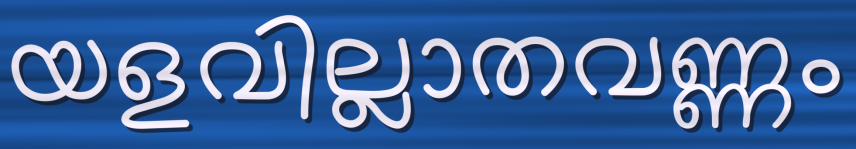
യളവില്ലാതവണ്ണം